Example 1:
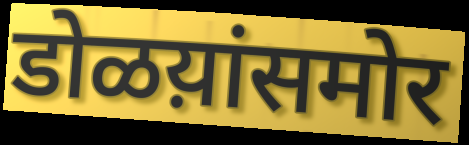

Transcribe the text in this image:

डोळय़ांसमोर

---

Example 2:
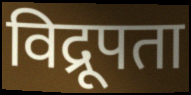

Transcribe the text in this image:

विद्रूपता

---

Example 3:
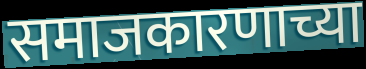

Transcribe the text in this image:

समाजकारणाच्या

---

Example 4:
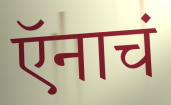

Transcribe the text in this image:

ऍनाचं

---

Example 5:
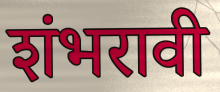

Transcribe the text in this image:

शंभरावी